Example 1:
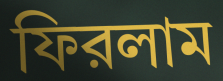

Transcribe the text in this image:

ফিরলাম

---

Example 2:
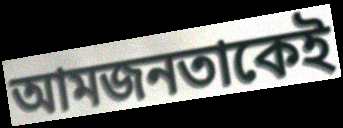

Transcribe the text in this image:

আমজনতাকেই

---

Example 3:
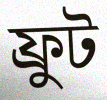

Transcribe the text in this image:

ফ্রুট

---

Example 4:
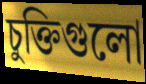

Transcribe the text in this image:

চুক্তিগুলো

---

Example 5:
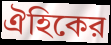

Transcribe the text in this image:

ঐহিকের